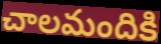
చాలమందికి